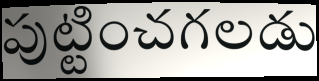
పుట్టించగలడు